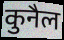
कुनैल